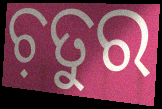
ଚ଼ତୁର